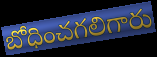
బోధించగలిగారు